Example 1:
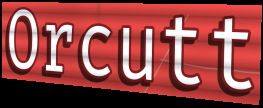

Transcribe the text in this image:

Orcutt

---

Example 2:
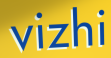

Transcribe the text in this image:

vizhi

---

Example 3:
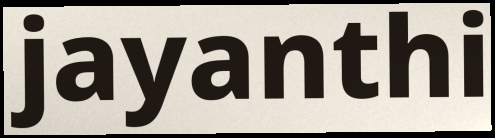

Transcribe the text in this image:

jayanthi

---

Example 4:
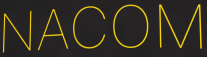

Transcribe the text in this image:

NACOM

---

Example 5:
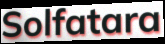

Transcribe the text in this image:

Solfatara